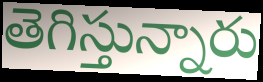
తెగిస్తున్నారు